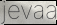
jevaa